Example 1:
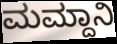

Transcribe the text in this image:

ಮಮ್ದಾನಿ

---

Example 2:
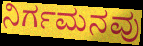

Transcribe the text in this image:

ನಿರ್ಗಮನವು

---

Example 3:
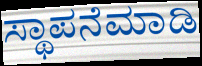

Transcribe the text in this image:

ಸ್ಥಾಪನೆಮಾಡಿ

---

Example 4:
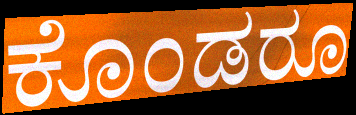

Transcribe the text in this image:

ಕೊಂಡರೂ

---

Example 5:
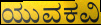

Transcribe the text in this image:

ಯುವಕವಿ